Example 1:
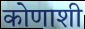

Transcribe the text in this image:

कोणाशी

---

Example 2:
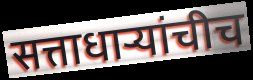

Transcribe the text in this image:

सत्ताधाऱ्यांचीच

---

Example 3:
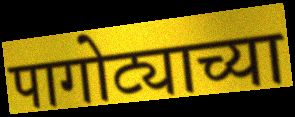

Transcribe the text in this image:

पागोट्याच्या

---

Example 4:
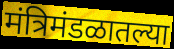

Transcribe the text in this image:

मंत्रिमंडळातल्या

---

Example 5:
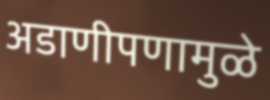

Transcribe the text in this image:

अडाणीपणामुळे